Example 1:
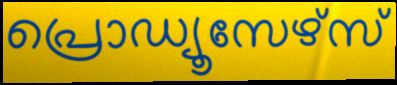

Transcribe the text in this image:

പ്രൊഡ്യൂസേഴ്സ്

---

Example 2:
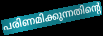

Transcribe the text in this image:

പരിണമിക്കുന്നതിന്റെ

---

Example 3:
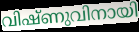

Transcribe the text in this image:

വിഷ്ണുവിനായി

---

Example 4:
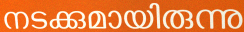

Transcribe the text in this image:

നടക്കുമായിരുന്നു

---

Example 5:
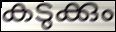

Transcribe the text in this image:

കടുക്കും